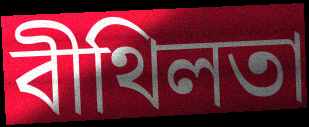
বীথিলতা